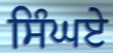
ਸਿੰਘਏ